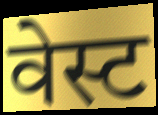
वेस्ट